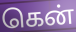
கென்